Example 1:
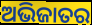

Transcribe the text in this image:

ଅଭିଜାତର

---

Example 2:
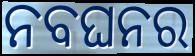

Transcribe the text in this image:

ନବଘନର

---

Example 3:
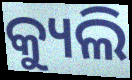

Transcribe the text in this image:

କ୍ୟୁଲି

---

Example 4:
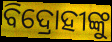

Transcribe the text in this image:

ବିଦ୍ରୋହୀଙ୍କୁ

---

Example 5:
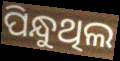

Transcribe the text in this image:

ପିନ୍ଧୁଥିଲ